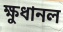
ক্ষুধানল